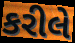
કરીલે